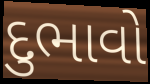
દુભાવો